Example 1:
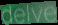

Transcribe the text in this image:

delve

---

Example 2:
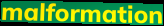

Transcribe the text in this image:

malformation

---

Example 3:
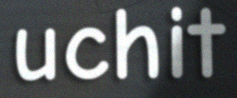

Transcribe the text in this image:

uchit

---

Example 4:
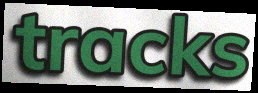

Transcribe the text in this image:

tracks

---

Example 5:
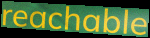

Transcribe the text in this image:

reachable